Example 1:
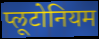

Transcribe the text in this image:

प्लूटोनियम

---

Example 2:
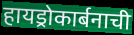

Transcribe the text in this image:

हायड्रोकार्बनाची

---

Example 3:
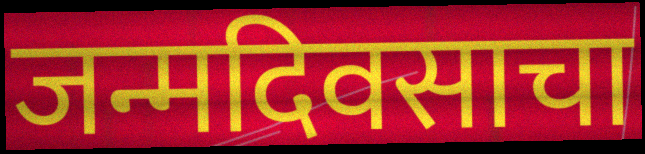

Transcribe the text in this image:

जन्मदिवसाचा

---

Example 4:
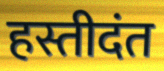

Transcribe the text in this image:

हस्तीदंत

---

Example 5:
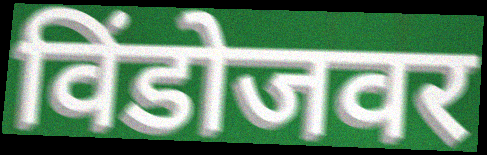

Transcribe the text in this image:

विंडोजवर